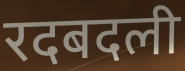
रदबदली